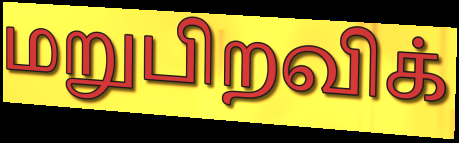
மறுபிறவிக்